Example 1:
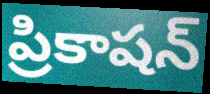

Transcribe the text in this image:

ప్రికాషన్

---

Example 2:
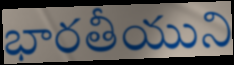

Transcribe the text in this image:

భారతీయుని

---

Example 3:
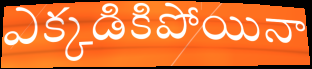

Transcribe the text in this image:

ఎక్కడికిపోయినా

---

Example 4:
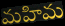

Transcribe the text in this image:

మహిమ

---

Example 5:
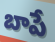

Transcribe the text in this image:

బాపే